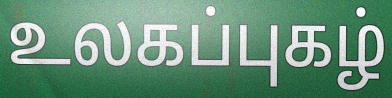
உலகப்புகழ்